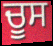
ਚੂਸ